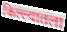
किल्ल्यातला